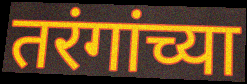
तरंगांच्या